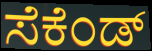
ಸೆಕೆಂಡ್